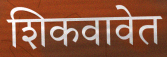
शिकवावेत